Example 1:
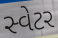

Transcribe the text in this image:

સ્વેટર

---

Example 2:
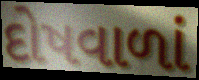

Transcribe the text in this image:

દોષવાળાં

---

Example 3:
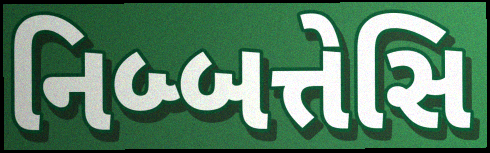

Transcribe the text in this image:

નિબ્બત્તેસિ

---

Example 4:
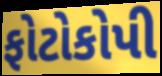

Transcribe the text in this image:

ફોટોકોપી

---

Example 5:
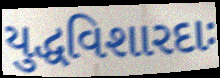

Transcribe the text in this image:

યુદ્ધવિશારદાઃ